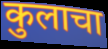
कुलाचा